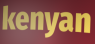
kenyan